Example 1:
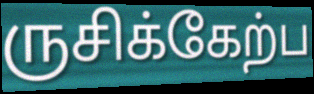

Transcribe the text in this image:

ருசிக்கேற்ப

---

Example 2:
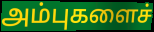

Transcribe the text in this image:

அம்புகளைச்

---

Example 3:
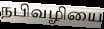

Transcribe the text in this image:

நபிவழியை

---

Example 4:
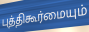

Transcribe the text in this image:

புத்திகூர்மையும்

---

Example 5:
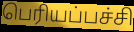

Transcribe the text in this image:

பெரியப்பச்சி